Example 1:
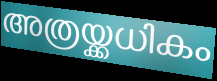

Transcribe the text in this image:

അത്രയ്ക്കധികം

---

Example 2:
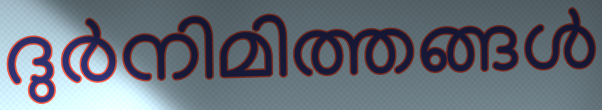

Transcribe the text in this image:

ദുർനിമിത്തങ്ങൾ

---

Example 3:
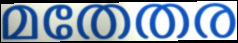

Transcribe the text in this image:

മതേതര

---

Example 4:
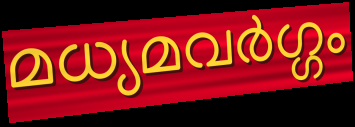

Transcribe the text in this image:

മധ്യമവർഗ്ഗം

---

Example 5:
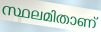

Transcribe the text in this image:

സ്ഥലമിതാണ്